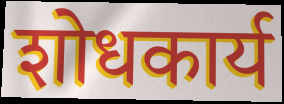
शोधकार्य